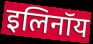
इलिनॉय